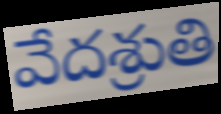
వేదశ్రుతి